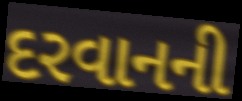
દરવાનની